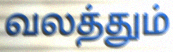
வலத்தும்